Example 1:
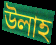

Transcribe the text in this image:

উলাহ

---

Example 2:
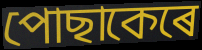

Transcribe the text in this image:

পোছাকেৰে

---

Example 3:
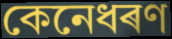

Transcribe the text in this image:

কেনেধৰণ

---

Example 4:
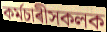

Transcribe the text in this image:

কৰ্মচাৰীসকলক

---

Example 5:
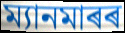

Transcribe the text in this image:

ম্যানমাৰৰ